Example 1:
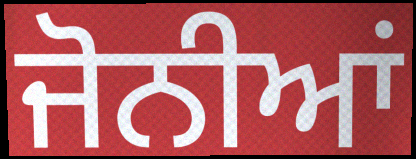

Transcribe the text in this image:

ਜੋਨੀਆਂ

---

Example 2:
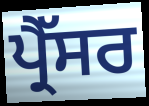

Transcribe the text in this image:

ਪ੍ਰੈੱਸਰ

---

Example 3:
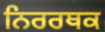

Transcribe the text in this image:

ਨਿਰਰਥਕ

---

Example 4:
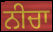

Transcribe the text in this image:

ਨੀਚਾ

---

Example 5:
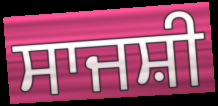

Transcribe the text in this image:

ਸਾਜਸ਼ੀ